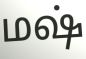
மஷ்